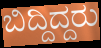
ಬಿದ್ದಿದ್ದರು